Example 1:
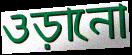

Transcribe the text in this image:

ওড়ানো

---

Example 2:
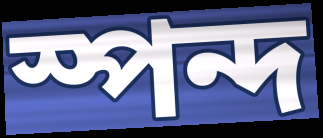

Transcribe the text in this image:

স্পন্দ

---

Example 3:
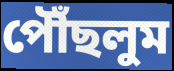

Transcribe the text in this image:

পৌঁছলুম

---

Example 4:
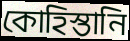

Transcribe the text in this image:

কোহিস্তানি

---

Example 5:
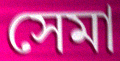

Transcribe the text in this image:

সেমা